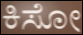
ಕಿಸೋ